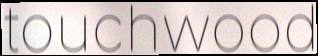
touchwood